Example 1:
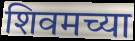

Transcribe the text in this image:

शिवमच्या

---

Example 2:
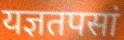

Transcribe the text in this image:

यज्ञतपसां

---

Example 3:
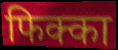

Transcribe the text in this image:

फिक्का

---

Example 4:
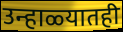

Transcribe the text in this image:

उन्हाळ्यातही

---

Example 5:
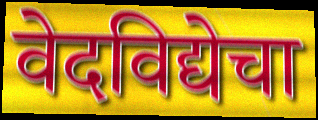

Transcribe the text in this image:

वेदविद्येचा